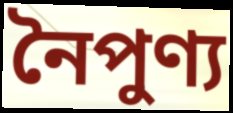
নৈপুণ্য